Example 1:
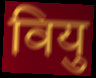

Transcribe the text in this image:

वियु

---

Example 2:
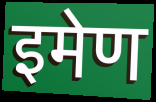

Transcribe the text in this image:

इमेण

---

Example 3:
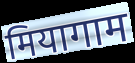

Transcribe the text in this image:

मियागाम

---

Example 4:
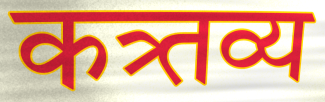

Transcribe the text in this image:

कत्र्तव्य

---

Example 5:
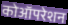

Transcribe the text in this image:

कोऑपरेशन